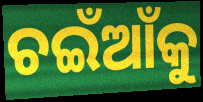
ଚଇଁଆଁକୁ